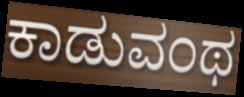
ಕಾಡುವಂಥ